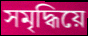
সমৃদ্ধিয়ে